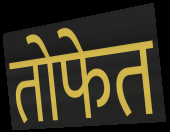
तोफेत